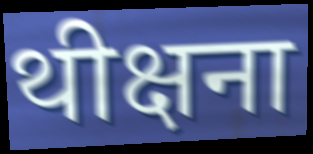
थीक्षना